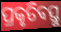
ପ୍ରକୃତିବସ୍ତୁ